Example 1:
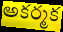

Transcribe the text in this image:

అకర్మక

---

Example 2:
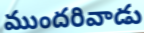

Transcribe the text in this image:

ముందరివాడు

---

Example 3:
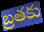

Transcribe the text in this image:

బ్రతకు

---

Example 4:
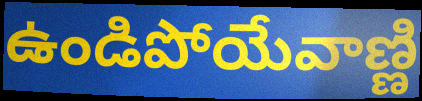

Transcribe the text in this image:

ఉండిపోయేవాణ్ణి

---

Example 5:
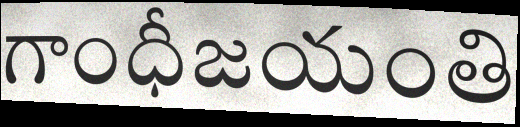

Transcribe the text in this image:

గాంధీజయంతి